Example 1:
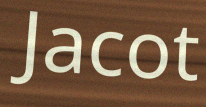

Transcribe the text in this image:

Jacot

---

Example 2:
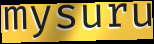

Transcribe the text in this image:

mysuru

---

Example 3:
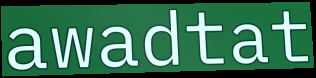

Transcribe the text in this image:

awadtat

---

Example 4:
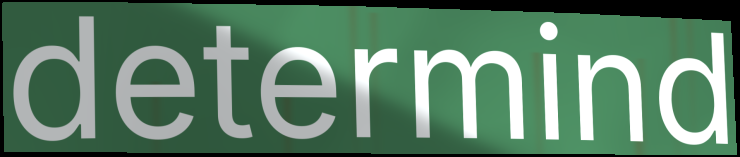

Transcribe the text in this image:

determind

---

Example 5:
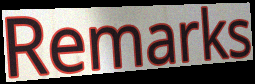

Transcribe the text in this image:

Remarks